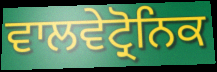
ਵਾਲਵੇਟ੍ਰੋਨਿਕ